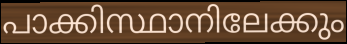
പാക്കിസ്ഥാനിലേക്കും